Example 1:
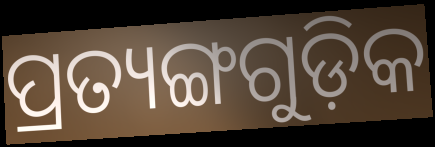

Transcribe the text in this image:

ପ୍ରତ୍ୟଙ୍ଗଗୁଡ଼ିକ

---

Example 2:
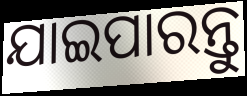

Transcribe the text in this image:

ଯାଇପାରନ୍ତୁ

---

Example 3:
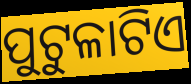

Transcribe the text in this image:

ପୁଟୁଳାଟିଏ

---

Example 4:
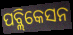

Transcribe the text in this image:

ପବ୍ଲିକେସନ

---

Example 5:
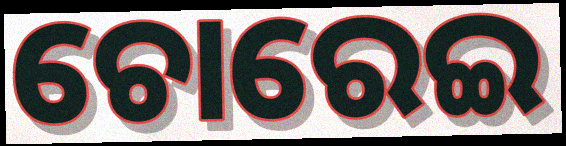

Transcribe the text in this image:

ଚୋରେଇ